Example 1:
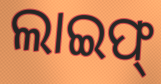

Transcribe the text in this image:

ଲାଇଫ୍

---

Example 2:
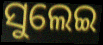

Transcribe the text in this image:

ସୁଲେଇ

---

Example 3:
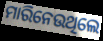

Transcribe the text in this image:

ମାରିନେଉଥିଲେ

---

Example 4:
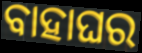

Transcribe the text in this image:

ବାହାଘର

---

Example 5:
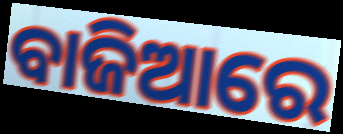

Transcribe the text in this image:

ବାଜିଆରେ